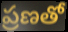
ప్రణతో